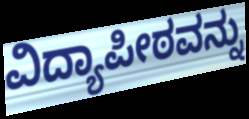
ವಿದ್ಯಾಪೀಠವನ್ನು